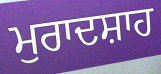
ਮੁਰਾਦਸ਼ਾਹ